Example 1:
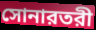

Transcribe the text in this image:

সোনারতরী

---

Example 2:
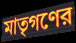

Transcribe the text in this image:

মাতৃগণের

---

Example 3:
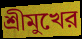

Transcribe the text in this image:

শ্রীমুখের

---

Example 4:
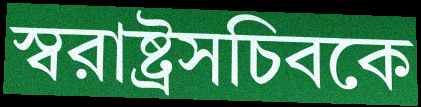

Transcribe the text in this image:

স্বরাষ্ট্রসচিবকে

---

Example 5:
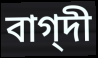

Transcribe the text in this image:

বাগ্‌দী